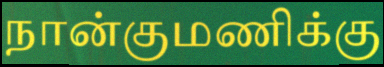
நான்குமணிக்கு